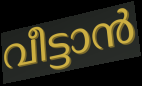
വീട്ടാൻ